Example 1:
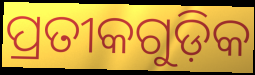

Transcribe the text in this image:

ପ୍ରତୀକଗୁଡ଼ିକ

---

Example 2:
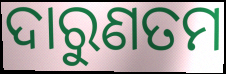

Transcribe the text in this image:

ଦାରୁଣତମ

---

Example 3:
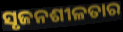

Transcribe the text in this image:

ସୃଜନଶୀଳତାର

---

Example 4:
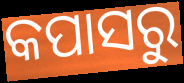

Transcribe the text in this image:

କପାସରୁ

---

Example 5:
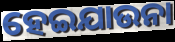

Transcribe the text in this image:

ହେଇଯାଉନା